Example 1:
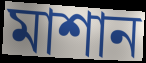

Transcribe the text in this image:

মাশান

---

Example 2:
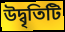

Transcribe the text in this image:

উদ্বৃতিটি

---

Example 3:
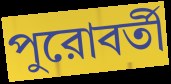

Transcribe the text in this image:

পুরোবর্তী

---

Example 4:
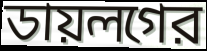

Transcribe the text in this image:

ডায়লগের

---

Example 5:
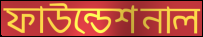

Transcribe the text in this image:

ফাউন্ডেশনাল